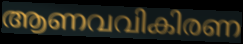
ആണവവികിരണ